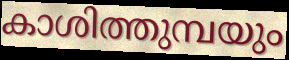
കാശിത്തുമ്പയും